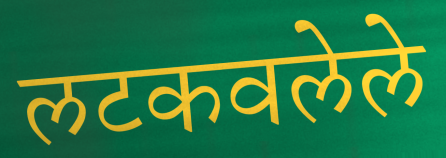
लटकवलेले